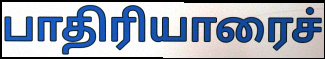
பாதிரியாரைச்